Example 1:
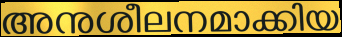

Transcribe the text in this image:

അനുശീലനമാക്കിയ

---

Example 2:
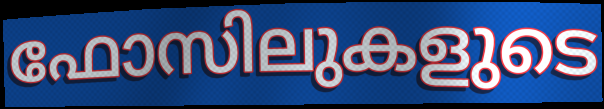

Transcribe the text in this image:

ഫോസിലുകളുടെ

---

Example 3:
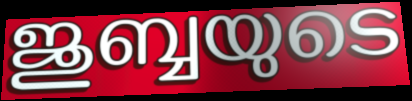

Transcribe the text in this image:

ജുബ്ബയുടെ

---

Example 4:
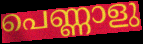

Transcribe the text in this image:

പെണ്ണാളു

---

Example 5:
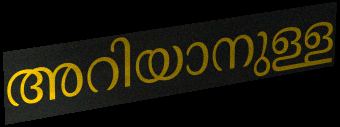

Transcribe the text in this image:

അറിയാനുള്ള